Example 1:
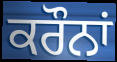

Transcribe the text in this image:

ਕਰੌਨਾਂ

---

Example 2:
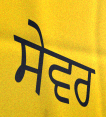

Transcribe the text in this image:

ਸੇਵਰ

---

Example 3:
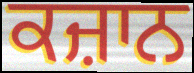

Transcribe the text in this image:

ਕਜ਼ਾਨ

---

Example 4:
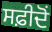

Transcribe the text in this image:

ਸਫ਼ੀਦੋਂ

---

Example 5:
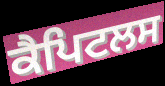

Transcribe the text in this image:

ਕੈਪਿਟਲਸ